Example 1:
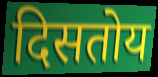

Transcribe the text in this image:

दिसतोय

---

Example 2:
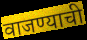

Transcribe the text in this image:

वाजण्याची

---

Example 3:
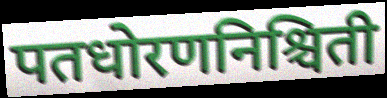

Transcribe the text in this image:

पतधोरणनिश्चिती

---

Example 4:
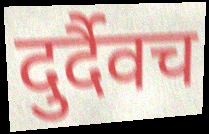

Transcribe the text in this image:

दुर्दैवच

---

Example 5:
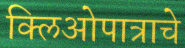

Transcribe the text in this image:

क्लिओपात्राचे